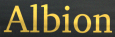
Albion